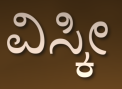
ವಿಸ್ಕೀ